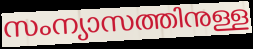
സംന്യാസത്തിനുള്ള